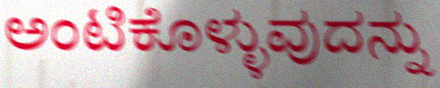
ಅಂಟಿಕೊಳ್ಳುವುದನ್ನು